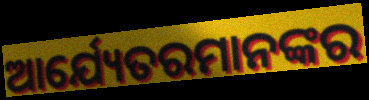
ଆର୍ଯ୍ୟେତରମାନଙ୍କର